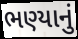
ભણ્યાનું